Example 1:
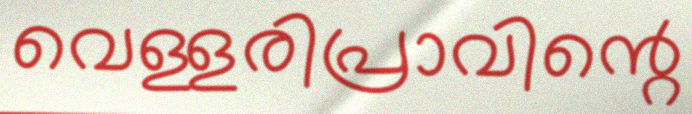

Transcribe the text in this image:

വെള്ളരിപ്രാവിന്റെ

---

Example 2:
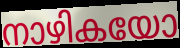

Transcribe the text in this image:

നാഴികയോ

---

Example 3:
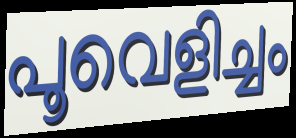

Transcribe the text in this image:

പൂവെളിച്ചം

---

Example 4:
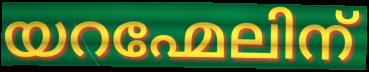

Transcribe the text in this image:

യറഹ്മേലിന്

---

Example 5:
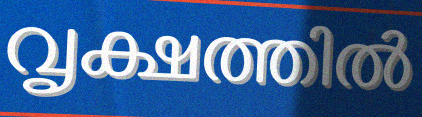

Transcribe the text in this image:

വൃക്ഷത്തിൽ